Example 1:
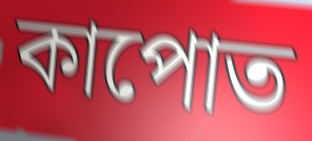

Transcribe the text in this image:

কাপোত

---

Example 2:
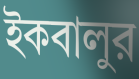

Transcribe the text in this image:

ইকবালুর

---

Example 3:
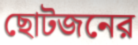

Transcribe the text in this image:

ছোটজনের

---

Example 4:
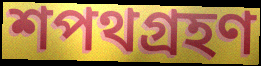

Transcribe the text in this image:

শপথগ্রহণ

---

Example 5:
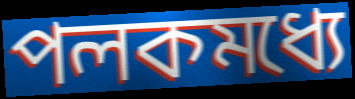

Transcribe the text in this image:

পলকমধ্যে